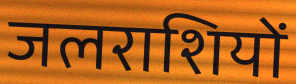
जलराशियों